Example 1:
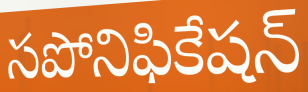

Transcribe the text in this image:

సపోనిఫికేషన్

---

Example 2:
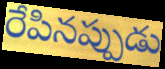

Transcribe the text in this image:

రేపినప్పుడు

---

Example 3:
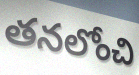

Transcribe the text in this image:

తనలోంచి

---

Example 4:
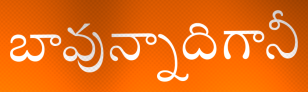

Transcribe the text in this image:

బావున్నాదిగానీ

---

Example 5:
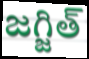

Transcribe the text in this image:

జగ్జిత్